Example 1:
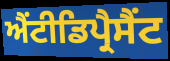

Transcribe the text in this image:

ਐਂਟੀਡਿਪ੍ਰੈਸੈਂਟ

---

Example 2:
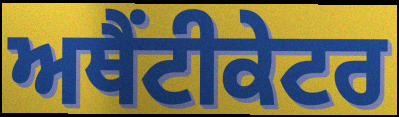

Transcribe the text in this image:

ਅਥੈਂਟੀਕੇਟਰ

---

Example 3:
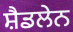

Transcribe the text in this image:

ਸ਼ੈਡਲੇਨ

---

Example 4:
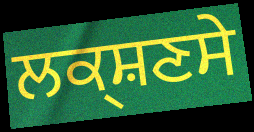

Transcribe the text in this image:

ਲਕ੍ਸ਼ਣਸੇ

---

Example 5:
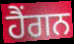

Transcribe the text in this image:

ਹੈਂਗਨ